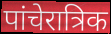
पांचेरात्रिक